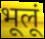
भूलूं